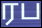
ரப